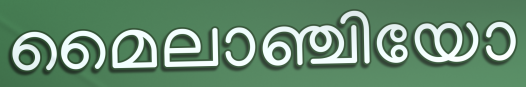
മൈലാഞ്ചിയോ